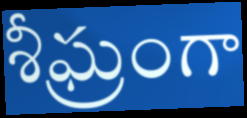
శీఘ్రంగా